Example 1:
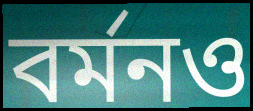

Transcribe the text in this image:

বর্মনও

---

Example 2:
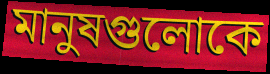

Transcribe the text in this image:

মানুষগুলোকে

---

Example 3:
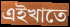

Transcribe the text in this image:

এইখাতে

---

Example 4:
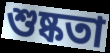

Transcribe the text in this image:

শুষ্কতা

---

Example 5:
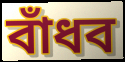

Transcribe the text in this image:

বাঁধব